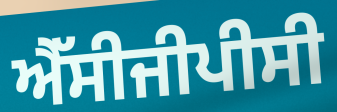
ਐੱਸੀਜੀਪੀਸੀ